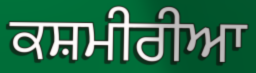
ਕਸ਼ਮੀਰੀਆ